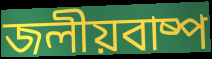
জলীয়বাষ্প